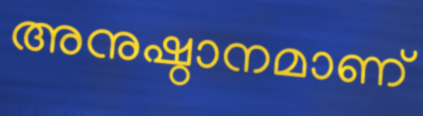
അനുഷ്ഠാനമാണ്